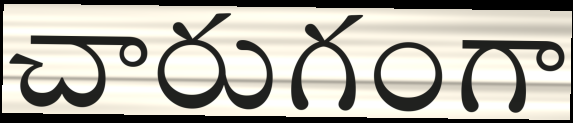
చారుగంగా